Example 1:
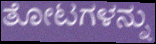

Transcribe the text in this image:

ತೋಟಗಳನ್ನು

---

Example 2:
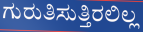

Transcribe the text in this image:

ಗುರುತಿಸುತ್ತಿರಲಿಲ್ಲ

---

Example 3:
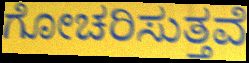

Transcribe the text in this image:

ಗೋಚರಿಸುತ್ತವೆ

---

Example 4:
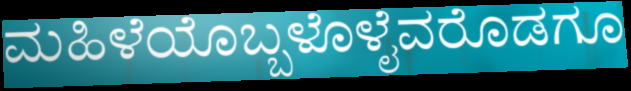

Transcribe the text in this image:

ಮಹಿಳೆಯೊಬ್ಬಳೊಳೈವರೊಡಗೂ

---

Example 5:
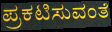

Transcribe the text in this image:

ಪ್ರಕಟಿಸುವಂತೆ